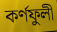
কর্ণফুলী